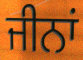
ਜੀਨਾਂ